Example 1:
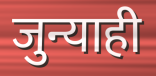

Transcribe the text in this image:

जुन्याही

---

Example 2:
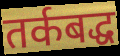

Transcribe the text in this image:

तर्कबद्ध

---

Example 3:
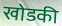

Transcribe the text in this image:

खोडकी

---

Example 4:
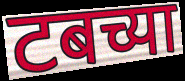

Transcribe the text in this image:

टबच्या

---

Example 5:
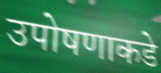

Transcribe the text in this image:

उपोषणाकडे